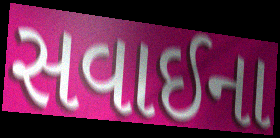
સવાઈના